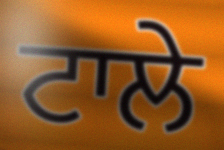
ਟਾਲੇ